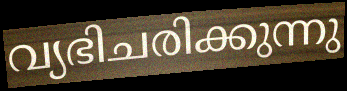
വ്യഭിചരിക്കുന്നു